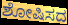
ಶೋಷಿಸದ